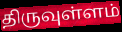
திருவுள்ளம்